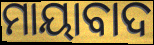
ମାୟାବାଦ